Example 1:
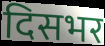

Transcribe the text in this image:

दिसभर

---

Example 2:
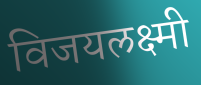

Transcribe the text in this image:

विजयलक्ष्मी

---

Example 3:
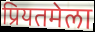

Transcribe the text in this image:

प्रियतमेला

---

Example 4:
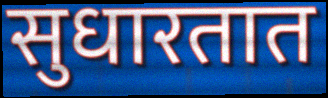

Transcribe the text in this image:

सुधारतात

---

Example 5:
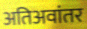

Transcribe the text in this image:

अतिअवांतर